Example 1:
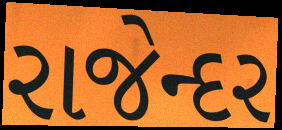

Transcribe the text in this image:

રાજેન્દર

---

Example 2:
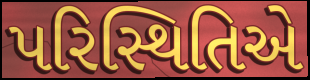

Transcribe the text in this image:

પરિસ્થિતિએ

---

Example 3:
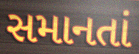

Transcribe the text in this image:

સમાનતાં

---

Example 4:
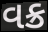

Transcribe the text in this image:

વક્ર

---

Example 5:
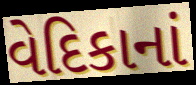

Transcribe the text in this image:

વેદિકાનાં